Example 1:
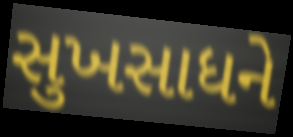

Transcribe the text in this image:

સુખસાધને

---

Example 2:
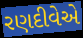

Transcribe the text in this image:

રણદીવેએ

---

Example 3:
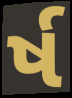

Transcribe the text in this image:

ર્ષ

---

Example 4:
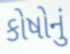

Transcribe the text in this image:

કોષોનું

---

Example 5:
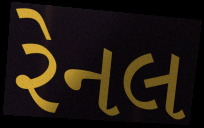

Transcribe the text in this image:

રેનલ